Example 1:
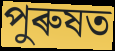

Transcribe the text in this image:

পুৰুষত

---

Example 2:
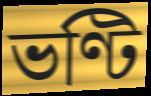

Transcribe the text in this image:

ভণ্টি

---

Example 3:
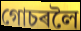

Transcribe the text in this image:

গোচৰলৈ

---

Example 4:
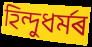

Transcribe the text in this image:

হিন্দুধৰ্মৰ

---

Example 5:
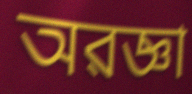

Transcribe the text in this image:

অৱজ্ঞা